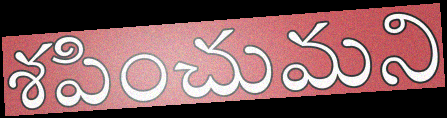
శపించుమని